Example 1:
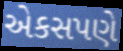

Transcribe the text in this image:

એકસપણે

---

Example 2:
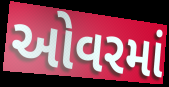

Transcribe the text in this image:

ઓવરમાં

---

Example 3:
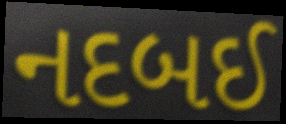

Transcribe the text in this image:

નદબઈ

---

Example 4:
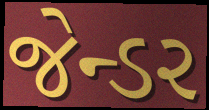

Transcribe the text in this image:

જેન્ડર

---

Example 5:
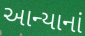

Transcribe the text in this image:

આન્યાનાં